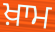
ਖ਼ਾਮ